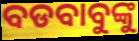
ବଡବାବୁଙ୍କୁ